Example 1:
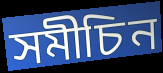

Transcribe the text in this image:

সমীচিন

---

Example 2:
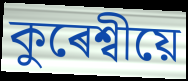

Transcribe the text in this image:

কুৰেশ্বীয়ে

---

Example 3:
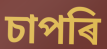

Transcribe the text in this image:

চাপৰি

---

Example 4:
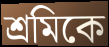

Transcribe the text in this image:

শ্ৰমিকে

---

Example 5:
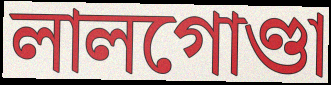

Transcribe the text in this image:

লালগোণ্ডা